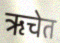
ॠचेत